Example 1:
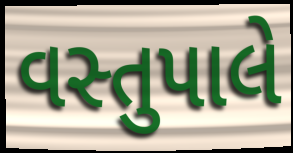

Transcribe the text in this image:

વસ્તુપાલે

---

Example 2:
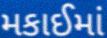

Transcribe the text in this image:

મકાઈમાં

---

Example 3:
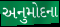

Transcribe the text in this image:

અનુમોદના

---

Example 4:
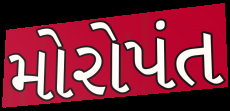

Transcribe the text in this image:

મોરોપંત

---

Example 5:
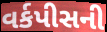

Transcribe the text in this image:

વર્કપીસની